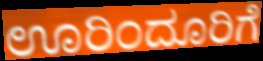
ಊರಿಂದೂರಿಗೆ